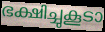
ഭക്ഷിച്ചുകൂടാ